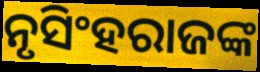
ନୃସିଂହରାଜଙ୍କ